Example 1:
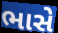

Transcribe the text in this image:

ભાસે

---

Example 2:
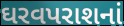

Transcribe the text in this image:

ઘરવપરાશનાં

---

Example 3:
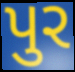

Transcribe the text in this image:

પુર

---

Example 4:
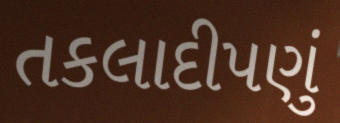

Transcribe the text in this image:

તકલાદીપણું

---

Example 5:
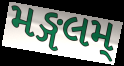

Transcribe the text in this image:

મઙ્ગલમ્